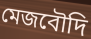
মেজবৌদি